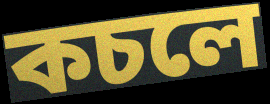
কচলে